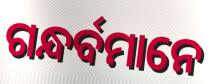
ଗନ୍ଧର୍ବମାନେ